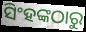
ସିଂହଙ୍କଠାରୁ